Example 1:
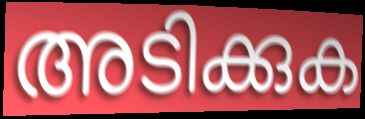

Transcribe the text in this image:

അടിക്കുക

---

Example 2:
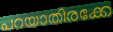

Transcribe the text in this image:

പറയാതിരക്കേ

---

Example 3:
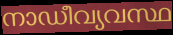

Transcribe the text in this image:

നാഡീവ്യവസ്ഥ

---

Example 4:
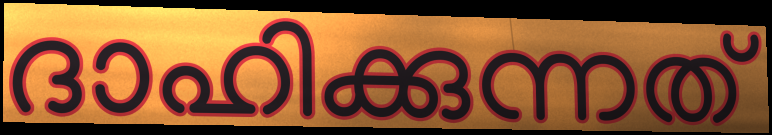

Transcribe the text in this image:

ദാഹിക്കുന്നത്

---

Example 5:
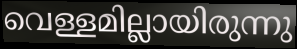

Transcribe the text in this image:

വെള്ളമില്ലായിരുന്നു